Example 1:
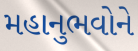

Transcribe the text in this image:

મહાનુભવોને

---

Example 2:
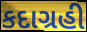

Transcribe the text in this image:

કદાગ્રહી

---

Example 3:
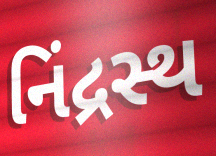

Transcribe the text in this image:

નિંદ્રસ્થ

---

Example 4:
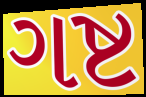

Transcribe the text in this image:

ગષ્ટ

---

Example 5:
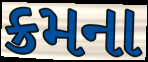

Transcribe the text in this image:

ક્રમના